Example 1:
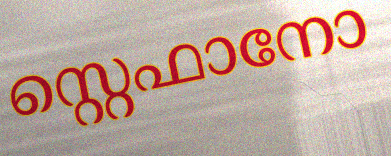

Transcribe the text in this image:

സ്റ്റെഫാനോ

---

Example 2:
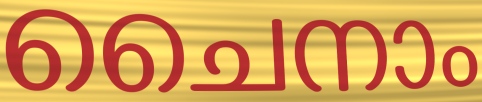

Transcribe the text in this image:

ചൈനാം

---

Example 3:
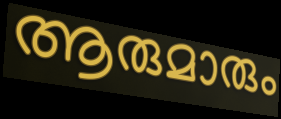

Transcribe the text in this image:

ആരുമാരും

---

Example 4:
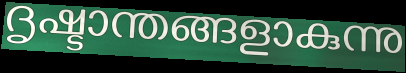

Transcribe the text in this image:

ദൃഷ്ടാന്തങ്ങളാകുന്നു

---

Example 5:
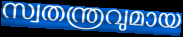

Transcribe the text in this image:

സ്വതന്ത്രവുമായ